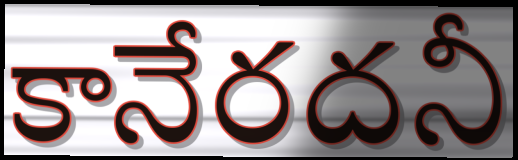
కానేరదనీ